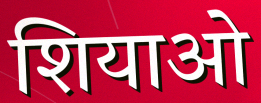
शियाओ